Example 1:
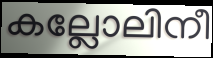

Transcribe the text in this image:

കല്ലോലിനീ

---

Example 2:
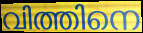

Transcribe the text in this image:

വിത്തിനെ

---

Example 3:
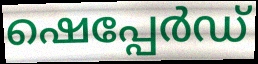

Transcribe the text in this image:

ഷെപ്പേർഡ്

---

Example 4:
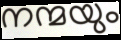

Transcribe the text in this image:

നന്മയും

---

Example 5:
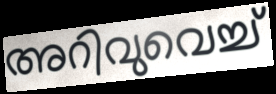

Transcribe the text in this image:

അറിവുവെച്ച്